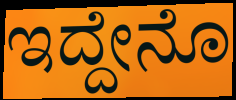
ಇದ್ದೇನೊ